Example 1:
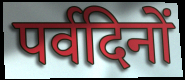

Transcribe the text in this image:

पर्वदिनों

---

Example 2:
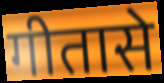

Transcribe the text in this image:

गीतासे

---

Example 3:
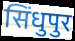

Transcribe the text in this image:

सिंधुपुर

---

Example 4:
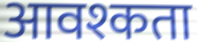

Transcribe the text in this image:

आवश्कता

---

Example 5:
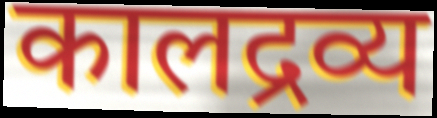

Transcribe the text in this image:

कालद्रव्य